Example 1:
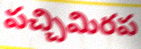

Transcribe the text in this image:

పచ్చిమిరప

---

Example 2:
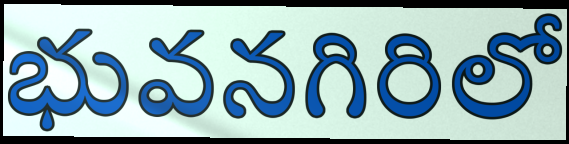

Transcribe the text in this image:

భువనగిరిలో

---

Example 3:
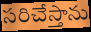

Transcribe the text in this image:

సరిచేస్తాను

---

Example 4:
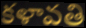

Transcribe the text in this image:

కళావతి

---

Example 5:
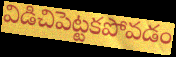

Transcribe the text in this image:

విడిచిపెట్టకపోవడం